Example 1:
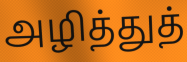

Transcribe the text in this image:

அழித்துத்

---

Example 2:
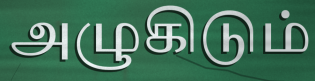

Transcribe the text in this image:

அழுகிடும்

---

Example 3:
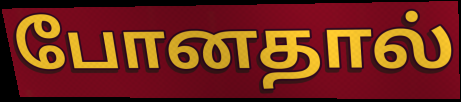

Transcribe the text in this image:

போனதால்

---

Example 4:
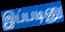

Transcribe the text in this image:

இப்படினு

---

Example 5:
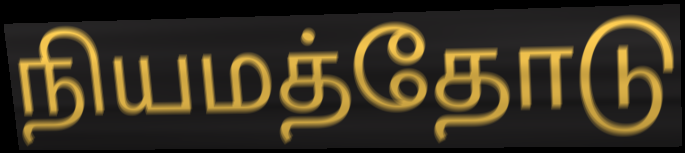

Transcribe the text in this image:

நியமத்தோடு